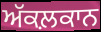
ਅੱਕਲ਼ਕਾਨ